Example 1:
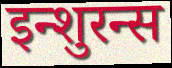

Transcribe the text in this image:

इन्शुरन्स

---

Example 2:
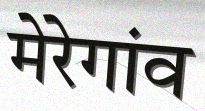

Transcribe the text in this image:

मेरेगांव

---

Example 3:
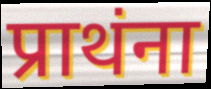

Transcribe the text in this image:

प्राथंना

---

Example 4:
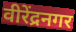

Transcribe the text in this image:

वीरेंद्रनगर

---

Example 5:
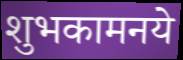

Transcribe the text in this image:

शुभकामनये